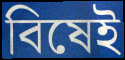
বিষেই